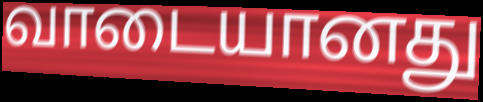
வாடையானது